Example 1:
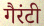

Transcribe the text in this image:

गैरंटी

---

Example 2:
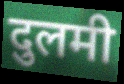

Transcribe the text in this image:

दुलमी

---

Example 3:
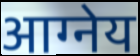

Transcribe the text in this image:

आग्नेय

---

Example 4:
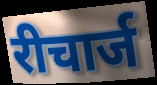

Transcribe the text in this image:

रीचार्ज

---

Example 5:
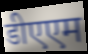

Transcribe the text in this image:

डीएएम